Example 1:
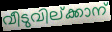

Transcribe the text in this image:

വീടുവില്ക്കാന്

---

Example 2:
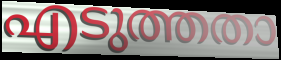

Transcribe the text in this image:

എടുത്തതാ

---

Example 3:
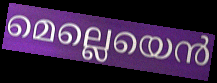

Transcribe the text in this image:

മെല്ലെയെൻ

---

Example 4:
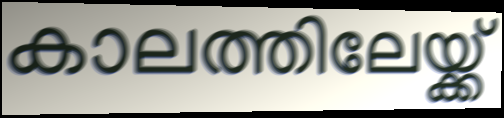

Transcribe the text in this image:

കാലത്തിലേയ്ക്ക്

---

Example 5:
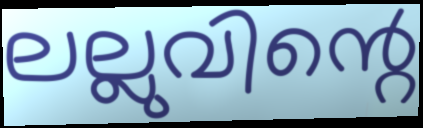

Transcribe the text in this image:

ലല്ലുവിന്റെ